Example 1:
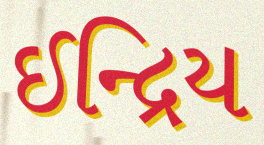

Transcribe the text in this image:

ઈન્દ્રિય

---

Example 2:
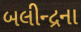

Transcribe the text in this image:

બલીન્દ્રના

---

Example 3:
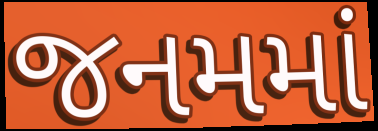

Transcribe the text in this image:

જનમમાં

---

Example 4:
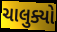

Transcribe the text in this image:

ચાલુક્યો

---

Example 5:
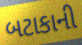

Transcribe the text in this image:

બટાકાની